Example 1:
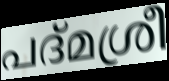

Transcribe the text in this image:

പദ്മശ്രീ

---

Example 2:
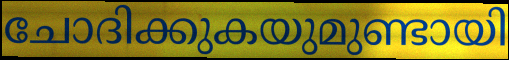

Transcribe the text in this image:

ചോദിക്കുകയുമുണ്ടായി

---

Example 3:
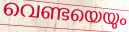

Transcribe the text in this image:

വെണ്ടയെയും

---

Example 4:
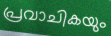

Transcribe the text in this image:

പ്രവാചികയും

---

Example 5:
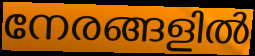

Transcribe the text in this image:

നേരങ്ങളിൽ